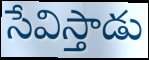
సేవిస్తాడు